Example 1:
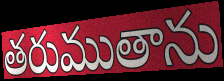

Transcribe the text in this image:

తరుముతాను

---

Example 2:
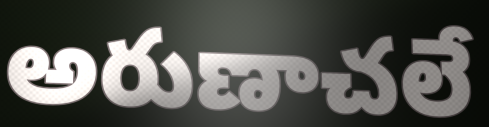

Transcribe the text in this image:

అరుణాచలే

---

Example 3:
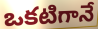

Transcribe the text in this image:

ఒకటిగానే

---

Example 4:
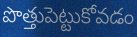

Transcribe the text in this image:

పొత్తుపెట్టుకోవడం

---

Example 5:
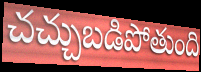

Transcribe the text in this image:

చచ్చుబడిపోతుంది